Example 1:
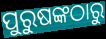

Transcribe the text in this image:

ପୁରୁଷଙ୍କଠାରୁ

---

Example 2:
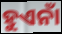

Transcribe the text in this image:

ହୁଏନାଁ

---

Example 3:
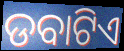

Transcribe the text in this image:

ଡବାଟିଏ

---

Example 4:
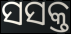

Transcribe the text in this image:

ସସକ୍ତ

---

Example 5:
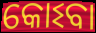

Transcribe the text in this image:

କୋଽବା